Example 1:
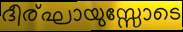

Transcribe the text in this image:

ദീര്ഘായുസ്സോടെ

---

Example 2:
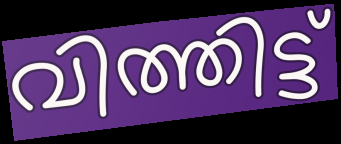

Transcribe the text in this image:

വിത്തിട്ട്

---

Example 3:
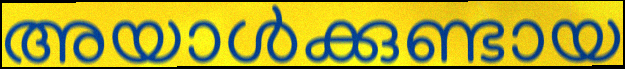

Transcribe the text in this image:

അയാൾക്കുണ്ടായ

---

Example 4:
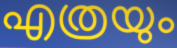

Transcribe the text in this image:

എത്രയും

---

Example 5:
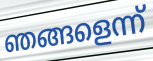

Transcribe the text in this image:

ഞങ്ങളെന്ന്